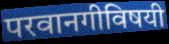
परवानगीविषयी